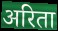
अरिता